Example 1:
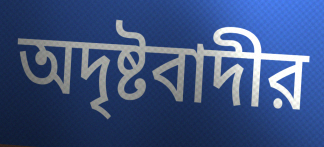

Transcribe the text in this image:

অদৃষ্টবাদীর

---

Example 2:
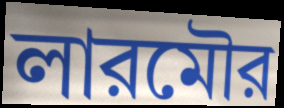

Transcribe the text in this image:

লারমৌর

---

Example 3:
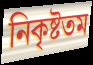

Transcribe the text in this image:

নিকৃষ্টতম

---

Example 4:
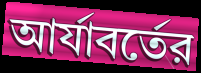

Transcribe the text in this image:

আর্যাবর্তের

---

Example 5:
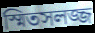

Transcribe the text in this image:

স্মিতসলজ্জ